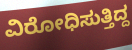
ವಿರೋಧಿಸುತ್ತಿದ್ದ